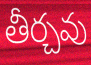
తీర్చవు